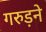
गरुड़ने